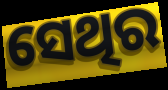
ସେଥିର